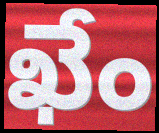
ఖేం